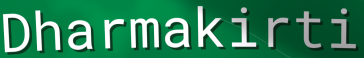
Dharmakirti